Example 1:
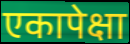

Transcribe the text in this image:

एकापेक्षा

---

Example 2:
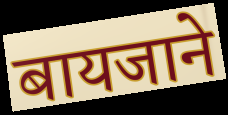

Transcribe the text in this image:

बायजाने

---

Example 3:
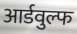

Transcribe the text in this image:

आर्डवुल्फ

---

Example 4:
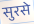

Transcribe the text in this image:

सुरसे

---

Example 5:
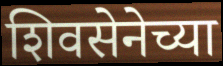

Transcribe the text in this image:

शिवसेनेच्या